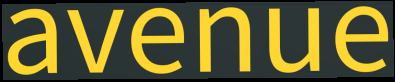
avenue